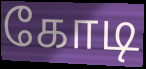
கோடி